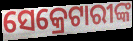
ସେକ୍ରେଟାରୀଙ୍କ